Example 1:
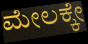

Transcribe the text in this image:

ಮೇಲಕ್ಕೇ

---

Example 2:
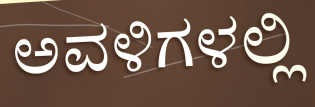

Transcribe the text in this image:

ಅವಳಿಗಳಲ್ಲಿ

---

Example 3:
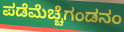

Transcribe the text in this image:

ಪಡೆಮೆಚ್ಚೆಗಂಡನಂ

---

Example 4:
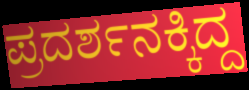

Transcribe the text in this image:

ಪ್ರದರ್ಶನಕ್ಕಿದ್ದ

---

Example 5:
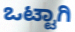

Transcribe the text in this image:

ಒಟ್ಟಾಗಿ